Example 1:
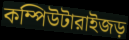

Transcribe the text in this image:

কম্পিউটারাইজড়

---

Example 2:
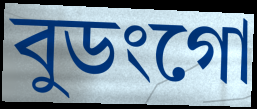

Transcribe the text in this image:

বুডংগো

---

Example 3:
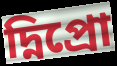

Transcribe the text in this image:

দ্নিপ্রো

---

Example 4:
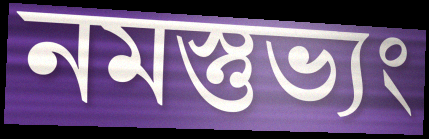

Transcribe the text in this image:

নমস্তুভ্যং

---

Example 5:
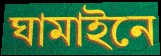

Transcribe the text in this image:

ঘামাইনে